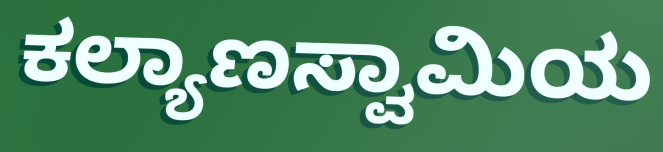
ಕಲ್ಯಾಣಸ್ವಾಮಿಯ